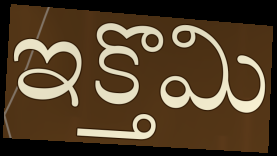
ఇక్తొమి